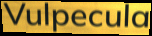
Vulpecula